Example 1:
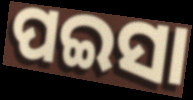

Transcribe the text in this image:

ପଇସା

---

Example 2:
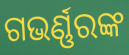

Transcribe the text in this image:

ଗଭର୍ଣ୍ଣରଙ୍କ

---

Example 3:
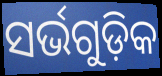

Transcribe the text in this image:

ସର୍ଭଗୁଡ଼ିକ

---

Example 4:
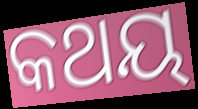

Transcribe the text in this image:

କଥୟ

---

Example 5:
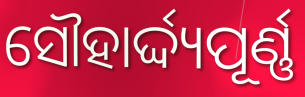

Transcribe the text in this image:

ସୌହାର୍ଦ୍ଦ୍ୟପୂର୍ଣ୍ଣ